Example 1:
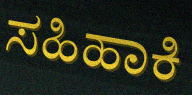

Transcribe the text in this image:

ಸಹಿಹಾಕಿ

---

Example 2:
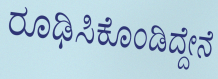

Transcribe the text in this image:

ರೂಢಿಸಿಕೊಂಡಿದ್ದೇನೆ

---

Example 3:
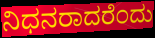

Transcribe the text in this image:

ನಿಧನರಾದರೆಂದು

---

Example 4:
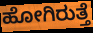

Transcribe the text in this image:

ಹೋಗಿರುತ್ತೆ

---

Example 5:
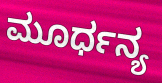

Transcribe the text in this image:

ಮೂರ್ಧನ್ಯ